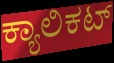
ಕ್ಯಾಲಿಕಟ್